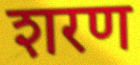
शरण